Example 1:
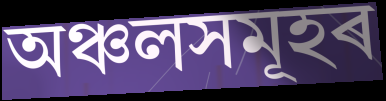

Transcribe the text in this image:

অঞ্চলসমূহৰ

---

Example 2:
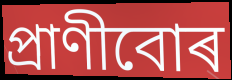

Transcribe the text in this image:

প্ৰাণীবোৰ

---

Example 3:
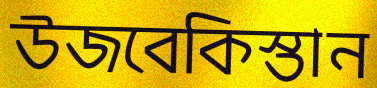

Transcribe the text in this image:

উজবেকিস্তান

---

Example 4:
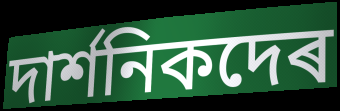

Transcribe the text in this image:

দাৰ্শনিকদেৰ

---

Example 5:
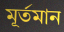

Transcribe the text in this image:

মূৰ্তমান